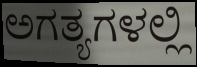
ಅಗತ್ಯಗಳಲ್ಲಿ